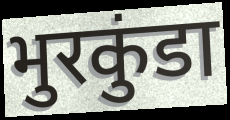
भुरकुंडा